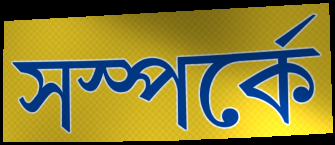
সস্পর্কে